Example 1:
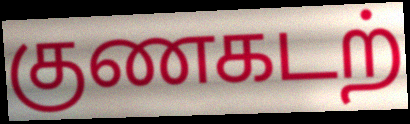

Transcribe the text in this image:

குணகடற்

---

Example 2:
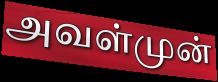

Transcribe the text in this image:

அவள்முன்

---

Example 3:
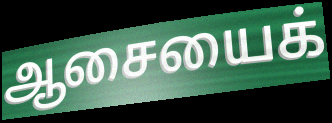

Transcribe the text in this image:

ஆசையைக்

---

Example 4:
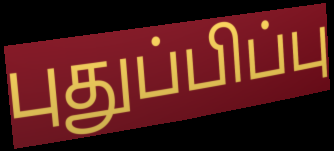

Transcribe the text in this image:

புதுப்பிப்பு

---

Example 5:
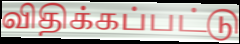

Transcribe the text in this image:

விதிக்கப்பட்டு